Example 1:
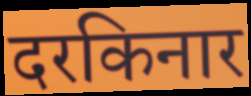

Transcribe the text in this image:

दरकिनार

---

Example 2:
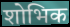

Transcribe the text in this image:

शोभिक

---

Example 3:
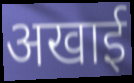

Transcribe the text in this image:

अखाई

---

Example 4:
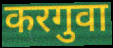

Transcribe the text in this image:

करगुवा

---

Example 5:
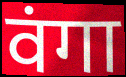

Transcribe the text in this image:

वंगा